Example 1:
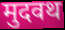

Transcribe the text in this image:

मुदवथ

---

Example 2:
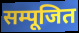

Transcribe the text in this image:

सम्पूजित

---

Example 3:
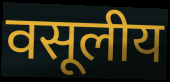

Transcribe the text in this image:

वसूलीय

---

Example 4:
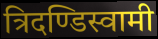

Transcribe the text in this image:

त्रिदण्डिस्वामी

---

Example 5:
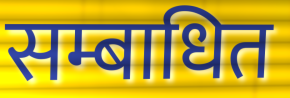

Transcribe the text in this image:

सम्बाधित